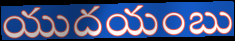
యుదయంబు